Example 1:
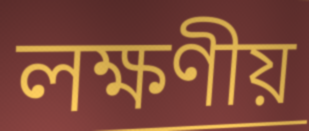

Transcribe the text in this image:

লক্ষণীয়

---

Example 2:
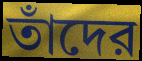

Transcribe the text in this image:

তাঁদের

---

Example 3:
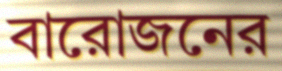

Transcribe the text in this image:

বারোজনের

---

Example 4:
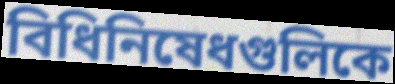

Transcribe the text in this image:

বিধিনিষেধগুলিকে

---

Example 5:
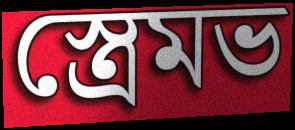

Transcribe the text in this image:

স্ত্রেমভ